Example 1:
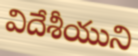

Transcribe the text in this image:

విదేశీయుని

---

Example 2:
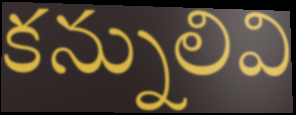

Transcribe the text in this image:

కన్నులివి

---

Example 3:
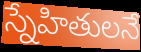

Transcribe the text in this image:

స్నేహితులనే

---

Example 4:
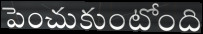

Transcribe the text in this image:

పెంచుకుంటోంది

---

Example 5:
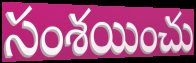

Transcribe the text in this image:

సంశయించు